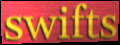
swifts